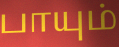
பாயும்